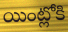
యింట్లోకి